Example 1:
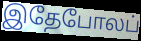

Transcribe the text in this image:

இதேபோலப்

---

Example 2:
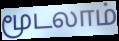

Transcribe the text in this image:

மூடலாம்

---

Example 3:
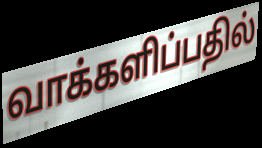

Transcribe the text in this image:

வாக்களிப்பதில்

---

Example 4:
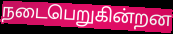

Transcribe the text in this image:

நடைபெறுகின்றன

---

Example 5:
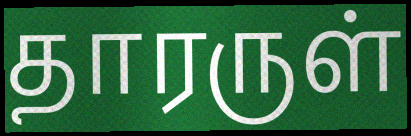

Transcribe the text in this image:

தாரருள்